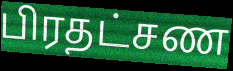
பிரதட்சண